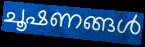
ചൂഷണങ്ങൾ